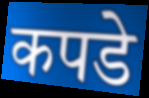
कपडे